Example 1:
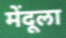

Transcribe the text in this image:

मेंदूला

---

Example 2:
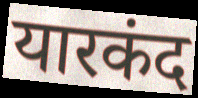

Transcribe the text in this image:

यारकंद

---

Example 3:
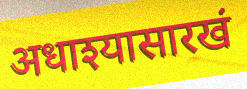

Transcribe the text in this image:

अधाश्यासारखं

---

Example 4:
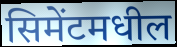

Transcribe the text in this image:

सिमेंटमधील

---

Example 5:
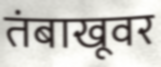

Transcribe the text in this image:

तंबाखूवर